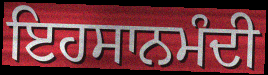
ਇਹਸਾਨਮੰਦੀ